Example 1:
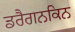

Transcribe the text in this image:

ਡਰੈਗਨਕਿਨ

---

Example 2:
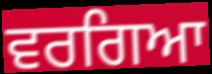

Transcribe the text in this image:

ਵਰਗਿਆ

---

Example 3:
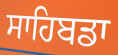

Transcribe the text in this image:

ਸਾਹਿਬਡਾ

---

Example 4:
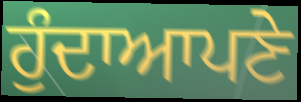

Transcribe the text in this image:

ਹੁੰਦਾਆਪਣੇ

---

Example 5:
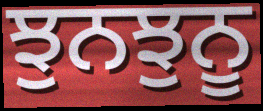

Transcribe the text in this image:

ਝੁਨਝੁਨੂ